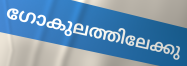
ഗോകുലത്തിലേക്കു